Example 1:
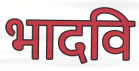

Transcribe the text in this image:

भादवि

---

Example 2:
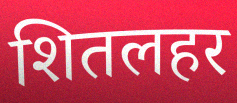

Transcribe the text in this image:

शितलहर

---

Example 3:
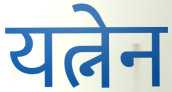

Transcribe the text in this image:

यत्नेन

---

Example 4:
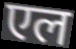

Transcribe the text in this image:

एल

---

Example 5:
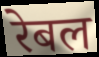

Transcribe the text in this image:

रेबल